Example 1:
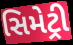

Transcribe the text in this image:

સિમેટ્રી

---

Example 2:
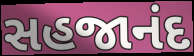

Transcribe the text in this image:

સહજાનંદ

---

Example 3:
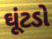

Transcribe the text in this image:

ઘૂંટડો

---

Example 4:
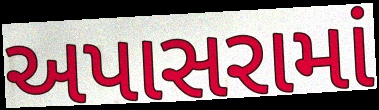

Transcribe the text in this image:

અપાસરામાં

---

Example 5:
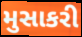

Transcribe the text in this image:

મુસાકરી